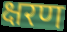
क्षरण